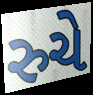
રુચે